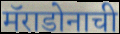
मॅराडोनाची